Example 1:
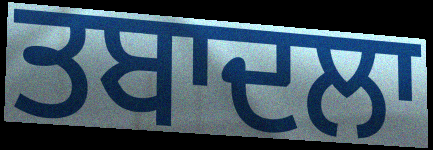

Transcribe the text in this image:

ਤਬਾਦਲਾ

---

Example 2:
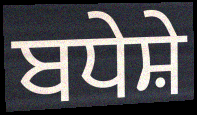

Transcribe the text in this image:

ਬਧੇਸ਼ੇ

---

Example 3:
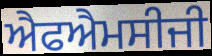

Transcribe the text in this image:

ਐਫਐਮਸੀਜੀ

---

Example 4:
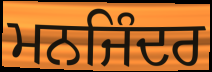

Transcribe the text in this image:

ਮਨਜਿੰਦਰ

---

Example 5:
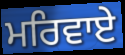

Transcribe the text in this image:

ਮਰਿਵਾਏ